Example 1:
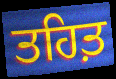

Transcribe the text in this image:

ਤਹਿਤ਼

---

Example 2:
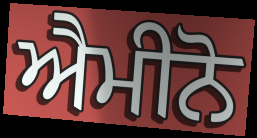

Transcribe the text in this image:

ਐਮੀਨੋ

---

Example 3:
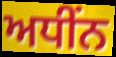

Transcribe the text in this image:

ਅਧੀਂਨ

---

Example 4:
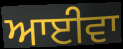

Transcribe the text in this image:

ਆਈਵਾ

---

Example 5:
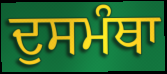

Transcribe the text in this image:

ਦੁਸਮੰਥਾ